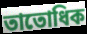
তাতোধিক